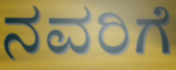
ನವರಿಗೆ